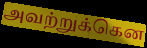
அவற்றுக்கென